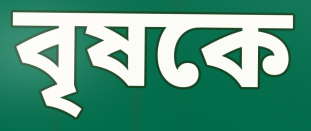
বৃষকে